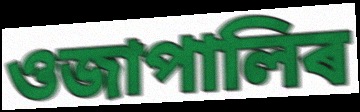
ওজাপালিৰ